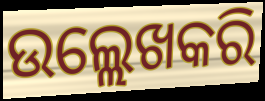
ଉଲ୍ଲେଖକରି